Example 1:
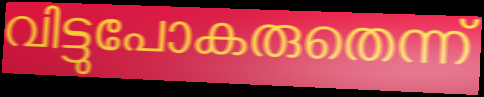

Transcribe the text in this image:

വിട്ടുപോകരുതെന്ന്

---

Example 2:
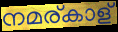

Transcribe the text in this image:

നമര്കാള്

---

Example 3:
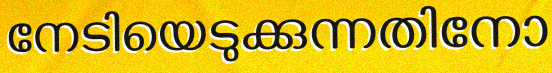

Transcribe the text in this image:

നേടിയെടുക്കുന്നതിനോ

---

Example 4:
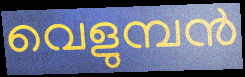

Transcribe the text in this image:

വെളുമ്പൻ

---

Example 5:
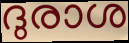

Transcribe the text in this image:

ദുരാശ